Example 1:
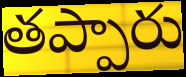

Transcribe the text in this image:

తప్పారు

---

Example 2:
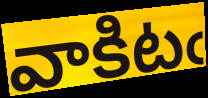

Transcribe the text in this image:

వాకిటఁ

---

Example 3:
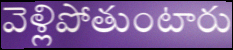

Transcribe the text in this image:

వెళ్లిపోతుంటారు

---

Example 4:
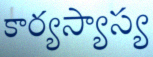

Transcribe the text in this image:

కార్యస్యాస్య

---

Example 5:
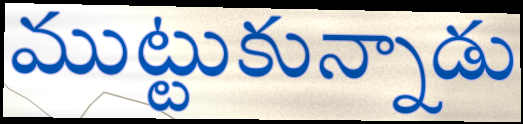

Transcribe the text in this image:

ముట్టుకున్నాడు